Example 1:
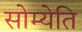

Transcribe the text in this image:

सोम्येति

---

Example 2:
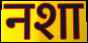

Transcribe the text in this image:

नशा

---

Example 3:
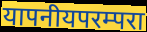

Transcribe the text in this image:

यापनीयपरम्परा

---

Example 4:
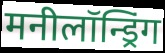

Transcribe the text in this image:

मनीलॉन्ड्रिंग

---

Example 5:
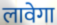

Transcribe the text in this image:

लावेगा